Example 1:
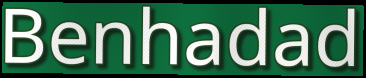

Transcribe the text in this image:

Benhadad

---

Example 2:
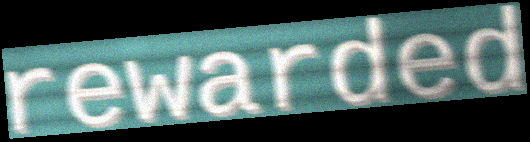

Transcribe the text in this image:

rewarded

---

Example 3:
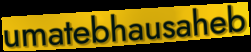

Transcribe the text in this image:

umatebhausaheb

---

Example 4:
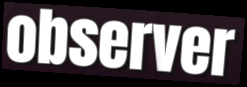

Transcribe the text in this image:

observer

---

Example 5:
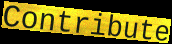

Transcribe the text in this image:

Contribute